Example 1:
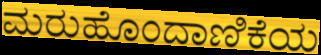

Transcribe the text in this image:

ಮರುಹೊಂದಾಣಿಕೆಯ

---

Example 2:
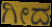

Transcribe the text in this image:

ಗೀದ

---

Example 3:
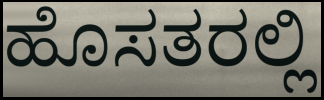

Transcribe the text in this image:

ಹೊಸತರಲ್ಲಿ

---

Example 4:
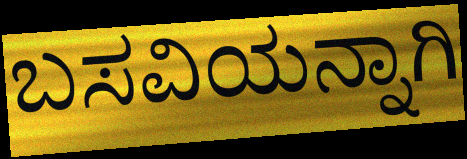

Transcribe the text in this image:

ಬಸವಿಯನ್ನಾಗಿ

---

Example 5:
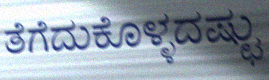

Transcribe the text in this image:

ತೆಗೆದುಕೊಳ್ಳದಷ್ಟು